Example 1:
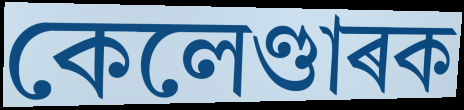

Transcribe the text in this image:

কেলেণ্ডাৰক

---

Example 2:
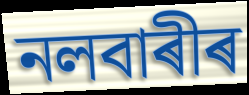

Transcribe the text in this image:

নলবাৰীৰ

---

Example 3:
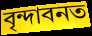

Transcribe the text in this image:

বৃন্দাবনত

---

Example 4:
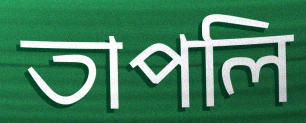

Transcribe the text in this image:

তাপলি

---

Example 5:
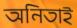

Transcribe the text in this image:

অনিতাই